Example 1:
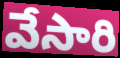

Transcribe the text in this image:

వేసారి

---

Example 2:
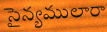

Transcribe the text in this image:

సైన్యములారా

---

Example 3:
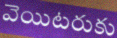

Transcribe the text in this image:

వెయిటరుకు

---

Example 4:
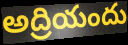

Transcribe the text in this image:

అద్రియందు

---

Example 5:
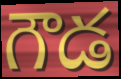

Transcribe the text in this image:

గౌడ